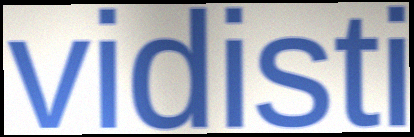
vidisti